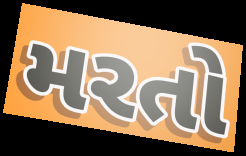
મરતો